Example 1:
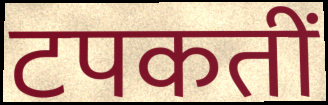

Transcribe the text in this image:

टपकतीं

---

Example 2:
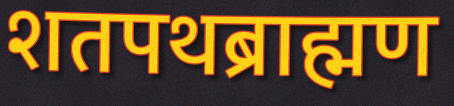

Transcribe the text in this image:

शतपथब्राह्मण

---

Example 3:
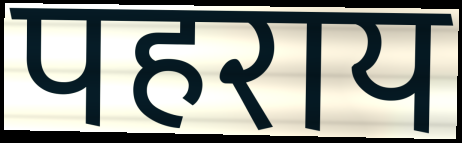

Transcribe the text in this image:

पहराय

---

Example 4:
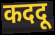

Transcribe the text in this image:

कददू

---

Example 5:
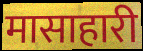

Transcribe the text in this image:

मासाहारी